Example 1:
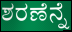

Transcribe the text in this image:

ಶರಣೆನ್ನೆ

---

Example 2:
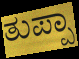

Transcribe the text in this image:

ತುಪ್ಪಾ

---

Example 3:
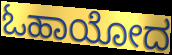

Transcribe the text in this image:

ಓಹಾಯೋದ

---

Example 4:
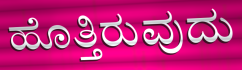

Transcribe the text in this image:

ಹೊತ್ತಿರುವುದು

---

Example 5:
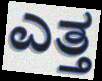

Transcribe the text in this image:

ಎತ್ತ